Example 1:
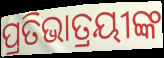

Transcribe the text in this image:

ପ୍ରତିଭାତ୍ରୟୀଙ୍କ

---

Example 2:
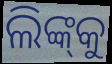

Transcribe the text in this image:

ଲିଙ୍କ୍‌କୁ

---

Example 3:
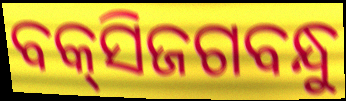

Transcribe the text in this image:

ବକ୍‌ସିଜଗବନ୍ଧୁ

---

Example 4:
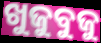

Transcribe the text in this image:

ଖୁଜୁବୁଜୁ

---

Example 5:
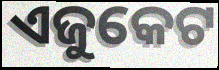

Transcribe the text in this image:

ଏଜୁକେଟ